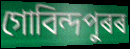
গোবিন্দপুৰৰ